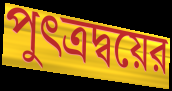
পুৎত্রদ্বয়ের